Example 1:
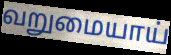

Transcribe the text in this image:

வறுமையாய்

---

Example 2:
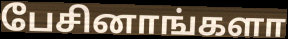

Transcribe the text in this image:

பேசினாங்களா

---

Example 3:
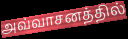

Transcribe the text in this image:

அவ்வாசனத்தில்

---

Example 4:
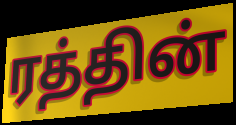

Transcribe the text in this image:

ரத்தின்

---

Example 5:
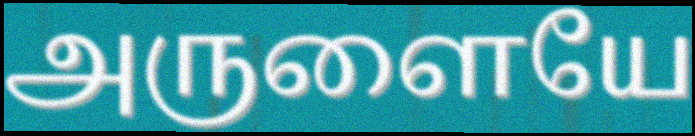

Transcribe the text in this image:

அருளையே